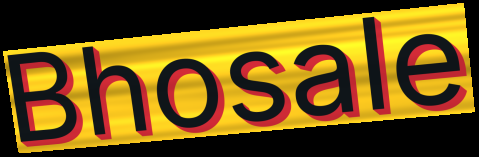
Bhosale